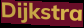
Dijkstra